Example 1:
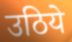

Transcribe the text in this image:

उठिये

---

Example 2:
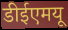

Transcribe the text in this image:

डीईएमयू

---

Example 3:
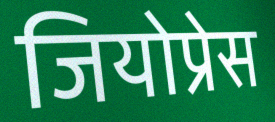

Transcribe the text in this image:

जियोप्रेस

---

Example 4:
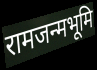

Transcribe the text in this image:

रामजन्मभूमि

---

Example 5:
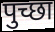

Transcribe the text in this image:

पुच्छा